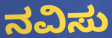
ನವಿಸು